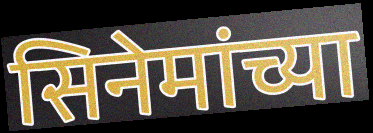
सिनेमांच्या